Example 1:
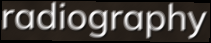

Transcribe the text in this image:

radiography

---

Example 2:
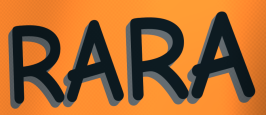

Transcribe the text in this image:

RARA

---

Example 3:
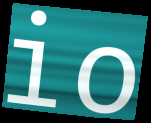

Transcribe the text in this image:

io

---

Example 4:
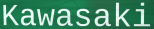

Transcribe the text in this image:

Kawasaki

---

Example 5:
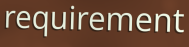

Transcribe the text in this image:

requirement